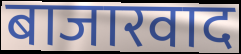
बाजारवाद